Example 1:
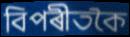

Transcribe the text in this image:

বিপৰীতকৈ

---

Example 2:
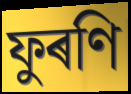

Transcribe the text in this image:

ফুৰণি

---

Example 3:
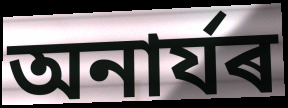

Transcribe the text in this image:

অনাৰ্যৰ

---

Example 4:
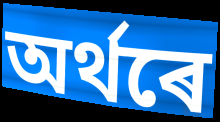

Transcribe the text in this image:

অৰ্থৰে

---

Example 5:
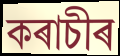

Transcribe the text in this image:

কৰাচীৰ